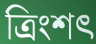
ত্ৰিংশৎ